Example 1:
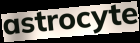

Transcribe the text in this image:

astrocyte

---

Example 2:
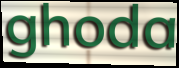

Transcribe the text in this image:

ghoda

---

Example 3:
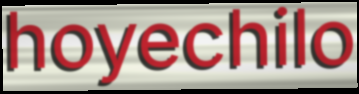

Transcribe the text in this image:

hoyechilo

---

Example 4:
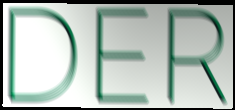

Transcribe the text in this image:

DER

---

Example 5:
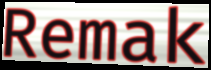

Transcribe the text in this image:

Remak